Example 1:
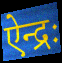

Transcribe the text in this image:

ऐन्द्रः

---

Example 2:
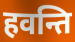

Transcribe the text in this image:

हवन्ति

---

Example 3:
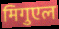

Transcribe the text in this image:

मिगुएल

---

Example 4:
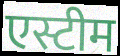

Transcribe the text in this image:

एस्टीम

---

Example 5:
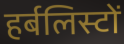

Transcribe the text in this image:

हर्बलिस्टों